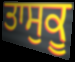
ਤਾਸੁਕੂ